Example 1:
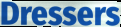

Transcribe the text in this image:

Dressers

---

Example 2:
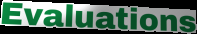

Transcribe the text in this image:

Evaluations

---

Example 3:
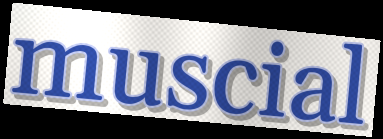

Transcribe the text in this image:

muscial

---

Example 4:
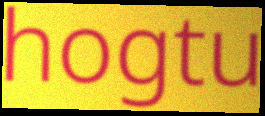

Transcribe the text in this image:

hogtu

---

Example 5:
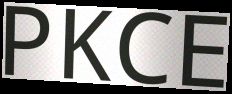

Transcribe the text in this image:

PKCE